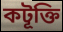
কটূক্তি